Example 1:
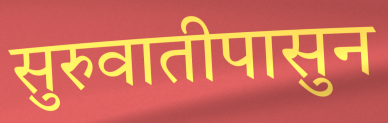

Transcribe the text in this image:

सुरुवातीपासुन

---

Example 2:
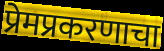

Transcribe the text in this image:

प्रेमप्रकरणाचा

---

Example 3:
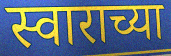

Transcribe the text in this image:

स्वाराच्या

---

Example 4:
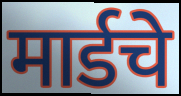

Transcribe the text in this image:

मार्डचे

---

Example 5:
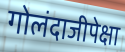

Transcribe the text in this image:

गोलंदाजीपेक्षा